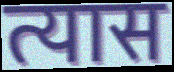
त्यास